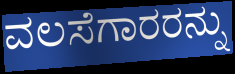
ವಲಸೆಗಾರರನ್ನು